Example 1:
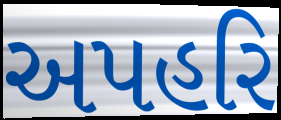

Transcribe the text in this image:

અપહરિ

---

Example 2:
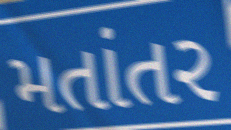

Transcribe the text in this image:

મતાંતર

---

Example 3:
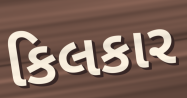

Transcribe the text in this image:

કિલકાર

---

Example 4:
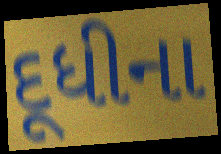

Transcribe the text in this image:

દૂધીના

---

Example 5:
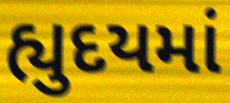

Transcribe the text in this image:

હ્યુદયમાં